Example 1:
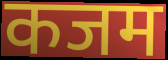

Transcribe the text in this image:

कजम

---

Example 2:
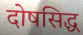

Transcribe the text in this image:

दोषसिद्ध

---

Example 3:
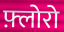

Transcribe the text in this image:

फ़्लोरो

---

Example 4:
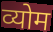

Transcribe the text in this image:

व्योम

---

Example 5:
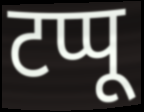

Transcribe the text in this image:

टप्पू